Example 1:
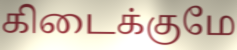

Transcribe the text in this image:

கிடைக்குமே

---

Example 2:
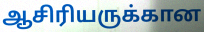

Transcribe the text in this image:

ஆசிரியருக்கான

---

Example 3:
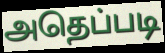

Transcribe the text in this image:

அதெப்படி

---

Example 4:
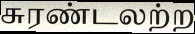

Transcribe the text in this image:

சுரண்டலற்ற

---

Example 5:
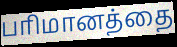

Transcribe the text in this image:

பரிமானத்தை